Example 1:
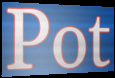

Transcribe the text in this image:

Pot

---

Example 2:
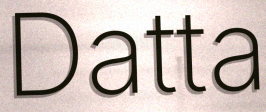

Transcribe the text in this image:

Datta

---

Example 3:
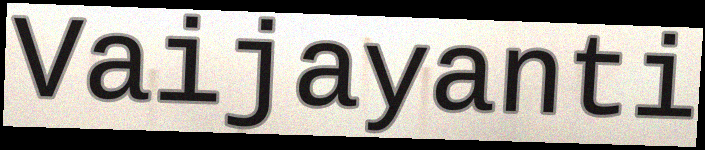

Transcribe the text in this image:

Vaijayanti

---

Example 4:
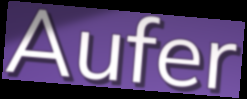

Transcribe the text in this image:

Aufer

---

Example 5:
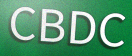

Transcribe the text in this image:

CBDC